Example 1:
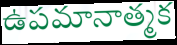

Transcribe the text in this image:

ఉపమానాత్మక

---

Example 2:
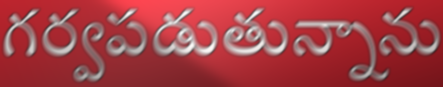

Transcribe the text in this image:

గర్వపడుతున్నాను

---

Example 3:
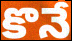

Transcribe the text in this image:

కొనే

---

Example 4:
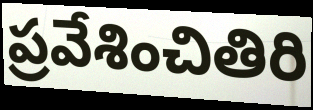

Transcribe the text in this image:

ప్రవేశించితిరి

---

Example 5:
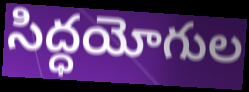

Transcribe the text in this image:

సిద్ధయోగుల